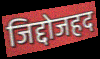
जिद्दोजहद